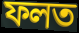
ফলত